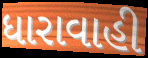
ધારાવાહી